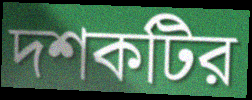
দশকটির